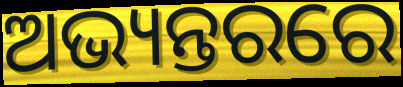
ଅଭ୍ୟନ୍ତରରେ